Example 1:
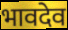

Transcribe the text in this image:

भावदेव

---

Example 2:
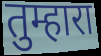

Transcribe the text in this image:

तुम्हारा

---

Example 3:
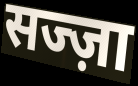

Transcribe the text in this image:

सज्ज़ा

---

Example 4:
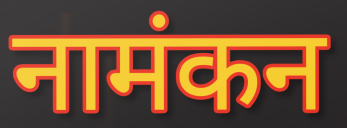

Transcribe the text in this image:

नामंकन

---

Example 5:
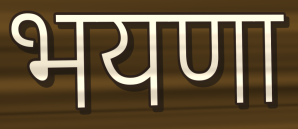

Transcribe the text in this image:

भयणा